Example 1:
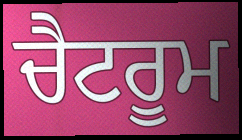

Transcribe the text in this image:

ਚੈਟਰੂਮ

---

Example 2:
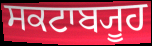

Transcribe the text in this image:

ਸਕਟਾਬ੍ਯੂਹ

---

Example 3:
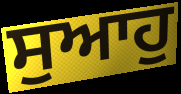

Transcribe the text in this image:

ਸੁਆਹੁ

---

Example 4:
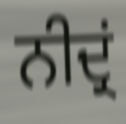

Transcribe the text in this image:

ਨੀਦ੍ਰਂ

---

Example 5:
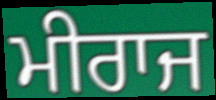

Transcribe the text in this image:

ਮੀਰਾਜ